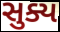
સુક્ય